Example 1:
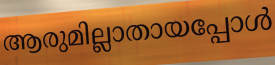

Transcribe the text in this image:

ആരുമില്ലാതായപ്പോൾ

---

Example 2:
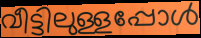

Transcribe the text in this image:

വീട്ടിലുള്ളപ്പോൾ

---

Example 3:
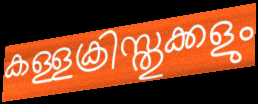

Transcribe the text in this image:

കള്ളക്രിസ്തുക്കളും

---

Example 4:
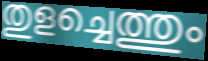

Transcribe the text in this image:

തുളച്ചെത്തും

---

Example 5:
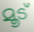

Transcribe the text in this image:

മൂട്